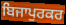
ਬਿਜਾਪੁਰਕਰ